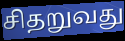
சிதறுவது